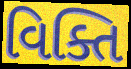
વિક્તિ